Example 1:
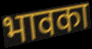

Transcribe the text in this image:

भावका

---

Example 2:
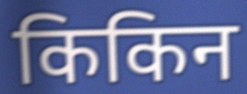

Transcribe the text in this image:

किकिन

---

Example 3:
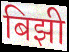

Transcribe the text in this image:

बिझी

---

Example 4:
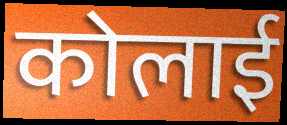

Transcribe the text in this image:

कोलाई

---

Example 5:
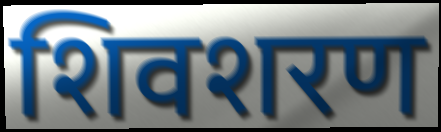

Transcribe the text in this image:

शिवशरण